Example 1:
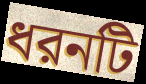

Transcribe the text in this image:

ধরনটি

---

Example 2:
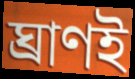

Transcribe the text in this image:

ঘ্রাণই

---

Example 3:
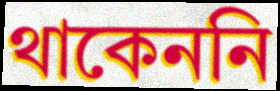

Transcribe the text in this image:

থাকেননি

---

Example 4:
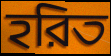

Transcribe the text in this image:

হরিত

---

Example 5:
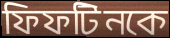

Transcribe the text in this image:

ফিফটিনকে